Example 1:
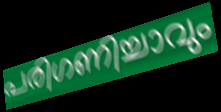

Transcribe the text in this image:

പരിഗണിച്ചാവും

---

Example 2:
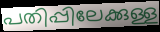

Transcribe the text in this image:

പതിപ്പിലേക്കുള്ള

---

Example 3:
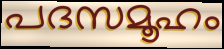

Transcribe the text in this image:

പദസമൂഹം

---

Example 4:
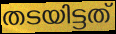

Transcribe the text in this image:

തടയിട്ടത്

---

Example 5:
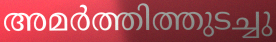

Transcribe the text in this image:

അമർത്തിത്തുടച്ചു